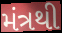
મંત્રથી